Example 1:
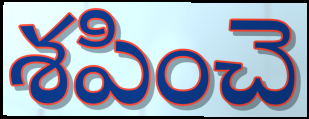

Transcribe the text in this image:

శపించె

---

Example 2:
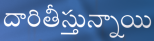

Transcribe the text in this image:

దారితీస్తున్నాయి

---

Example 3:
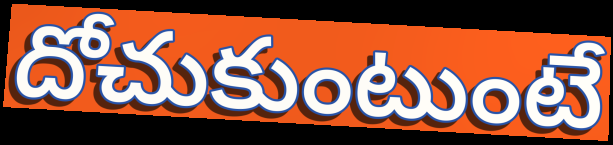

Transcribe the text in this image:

దోచుకుంటుంటే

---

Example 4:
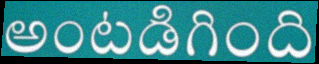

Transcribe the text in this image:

అంటడిగింది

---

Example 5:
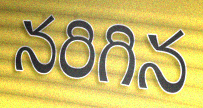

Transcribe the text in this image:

నరిగిన